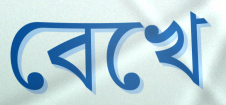
বেখে